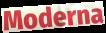
Moderna